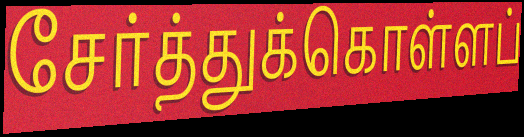
சேர்த்துக்கொள்ளப்